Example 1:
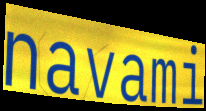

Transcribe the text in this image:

navami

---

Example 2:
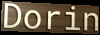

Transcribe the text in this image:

Dorin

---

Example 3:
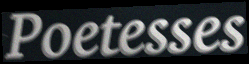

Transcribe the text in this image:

Poetesses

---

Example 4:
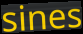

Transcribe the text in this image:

sines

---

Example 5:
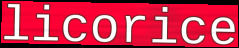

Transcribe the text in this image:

licorice